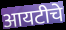
आयटीचे